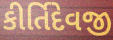
કીર્તિદેવજી